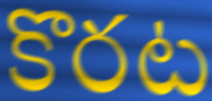
కొరట